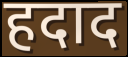
हदाद